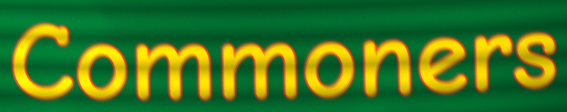
Commoners